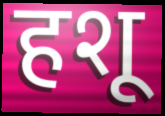
हशू